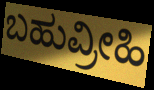
ಬಹುವ್ರೀಹಿ